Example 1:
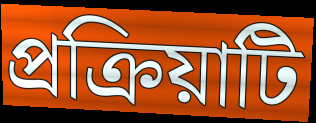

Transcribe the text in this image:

প্রক্রিয়াটি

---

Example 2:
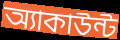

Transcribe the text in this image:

অ্যাকাউন্ট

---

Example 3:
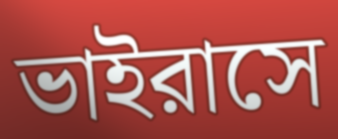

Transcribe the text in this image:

ভাইরাসে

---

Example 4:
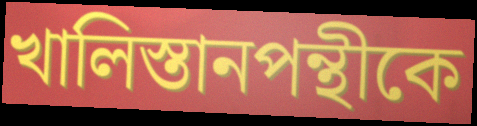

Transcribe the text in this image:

খালিস্তানপন্থীকে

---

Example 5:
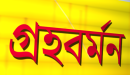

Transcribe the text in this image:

গ্রহবর্মন